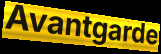
Avantgarde